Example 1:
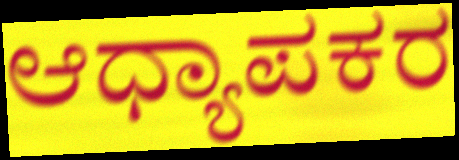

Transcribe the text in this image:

ಆಧ್ಯಾಪಕರ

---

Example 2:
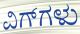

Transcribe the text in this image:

ವಿಗ್‌ಗಳು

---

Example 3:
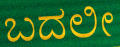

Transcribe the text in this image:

ಬದಲೀ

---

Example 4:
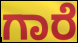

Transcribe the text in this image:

ಗಾರೆ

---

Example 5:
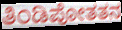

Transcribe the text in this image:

ತಿಂಡಿಪೋತತನ